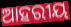
ଆହରୀୟ